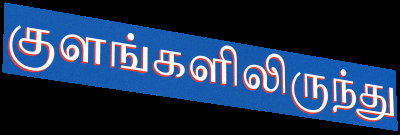
குளங்களிலிருந்து